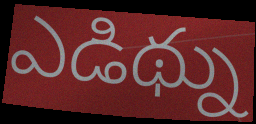
ఎడిథ్ను